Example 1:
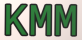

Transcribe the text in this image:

KMM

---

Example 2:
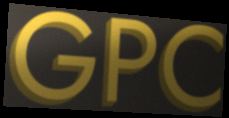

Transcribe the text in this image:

GPC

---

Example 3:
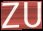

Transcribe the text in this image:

ZU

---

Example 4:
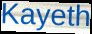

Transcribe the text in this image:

Kayeth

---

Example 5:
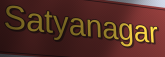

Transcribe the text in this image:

Satyanagar